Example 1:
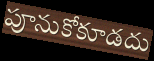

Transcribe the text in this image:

పూనుకోకూడదు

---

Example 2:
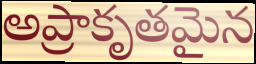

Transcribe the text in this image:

అప్రాకృతమైన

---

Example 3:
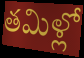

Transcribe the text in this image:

తమిళ్లో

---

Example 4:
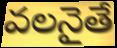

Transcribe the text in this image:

వలనైతే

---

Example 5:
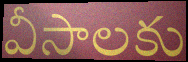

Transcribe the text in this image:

వీసాలకు